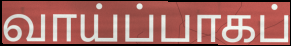
வாய்ப்பாகப்